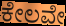
ಕೇಲವೇ